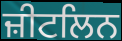
ਜ਼ੀਟਲਿਨ